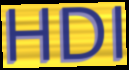
HDI